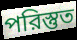
পরিস্তুত